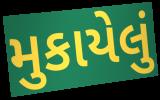
મુકાયેલું